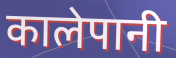
कालेपानी